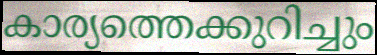
കാര്യത്തെക്കുറിച്ചും